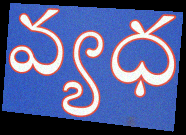
వ్యధ